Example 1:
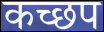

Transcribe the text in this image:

कच्छप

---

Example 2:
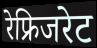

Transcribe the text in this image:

रेफ्रिजरेट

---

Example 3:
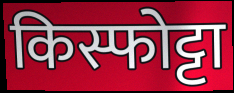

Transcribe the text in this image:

किस्फोट्टा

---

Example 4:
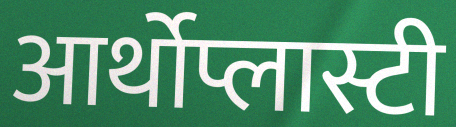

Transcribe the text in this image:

आर्थोप्लास्टी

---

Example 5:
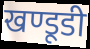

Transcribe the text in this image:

खण्डूडी